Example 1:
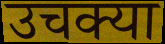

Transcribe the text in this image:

उचक्या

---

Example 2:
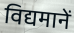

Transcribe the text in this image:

विद्यमानें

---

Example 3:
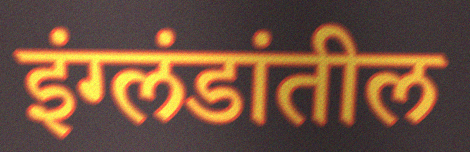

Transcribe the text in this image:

इंग्लंडांतील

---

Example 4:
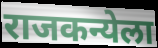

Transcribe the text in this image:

राजकन्येला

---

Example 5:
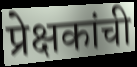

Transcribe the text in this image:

प्रेक्षकांची